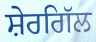
ਸ਼ੇਰਗਿੱਲ